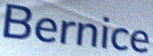
Bernice